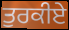
ਤੁਰਕੀਏ